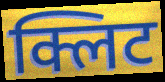
क्लिट